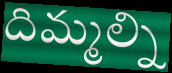
దిమ్మల్ని